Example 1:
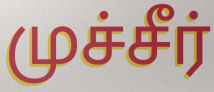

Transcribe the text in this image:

முச்சீர்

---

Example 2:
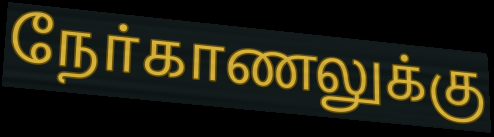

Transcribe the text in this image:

நேர்காணலுக்கு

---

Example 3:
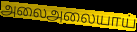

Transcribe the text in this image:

அலைஅலையாய்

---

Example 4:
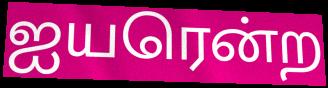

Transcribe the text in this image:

ஐயரென்ற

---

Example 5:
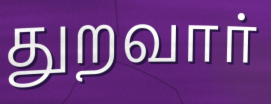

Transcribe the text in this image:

துறவார்